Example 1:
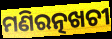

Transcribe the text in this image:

ମଣିରତ୍ନଖଚୀ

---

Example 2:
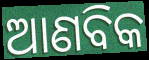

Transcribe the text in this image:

ଆଣବିକ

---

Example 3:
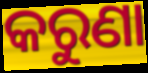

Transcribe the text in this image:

କରୁଣା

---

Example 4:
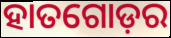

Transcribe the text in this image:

ହାତଗୋଡ଼ର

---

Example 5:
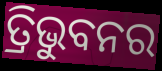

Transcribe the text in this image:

ତ୍ରିଭୁବନର